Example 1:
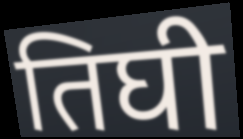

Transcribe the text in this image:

तिघी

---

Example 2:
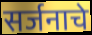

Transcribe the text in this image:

सर्जनाचे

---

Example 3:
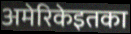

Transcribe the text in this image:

अमेरिकेइतका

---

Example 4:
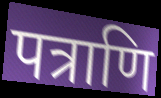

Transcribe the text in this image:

पत्राणि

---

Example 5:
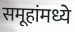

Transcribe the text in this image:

समूहांमध्ये